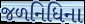
જળનિધિના